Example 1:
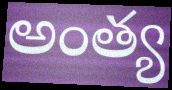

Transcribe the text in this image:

అంత్య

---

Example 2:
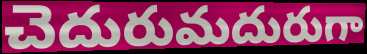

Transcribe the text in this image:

చెదురుమదురుగా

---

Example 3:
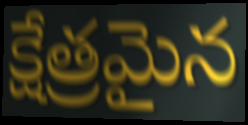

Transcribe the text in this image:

క్షేత్రమైన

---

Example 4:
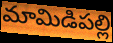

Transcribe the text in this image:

మామిడిపల్లి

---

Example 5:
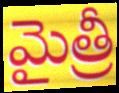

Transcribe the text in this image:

మైత్రీ